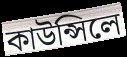
কাউন্সিলে